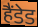
हैंडेड